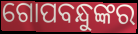
ଗୋପବନ୍ଧୁଙ୍କର